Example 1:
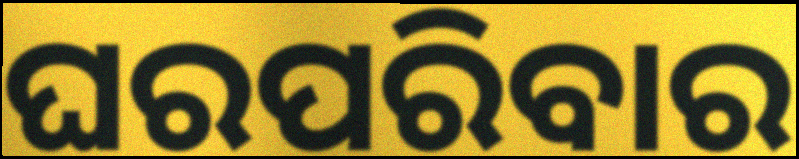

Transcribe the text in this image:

ଘରପରିବାର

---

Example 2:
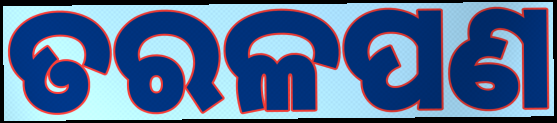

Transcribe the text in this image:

ତରଳପଣ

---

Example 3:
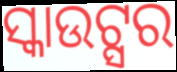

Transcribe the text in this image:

ସ୍କାଉଟ୍ସର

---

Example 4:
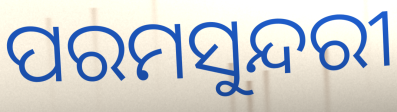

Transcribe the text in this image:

ପରମସୁନ୍ଦରୀ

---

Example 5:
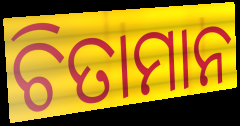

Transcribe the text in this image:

ଚିତାମାନ